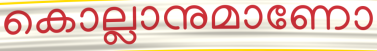
കൊല്ലാനുമാണോ